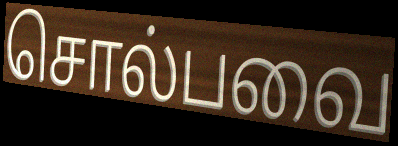
சொல்பவை